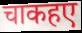
चाकहए